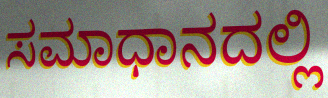
ಸಮಾಧಾನದಲ್ಲಿ